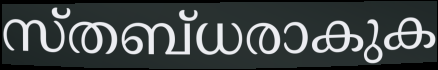
സ്തബ്ധരാകുക